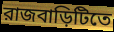
রাজবাড়িটিতে